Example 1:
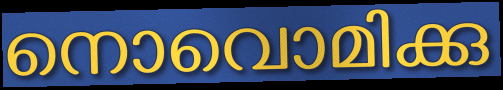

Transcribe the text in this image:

നൊവൊമിക്കു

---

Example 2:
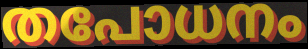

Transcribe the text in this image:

തപോധനം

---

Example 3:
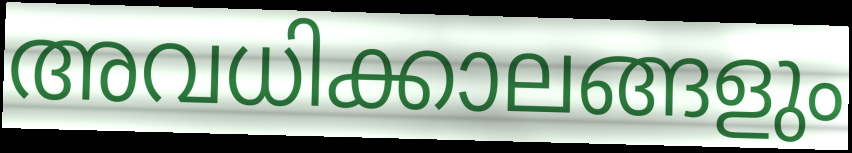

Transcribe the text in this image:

അവധിക്കാലങ്ങളും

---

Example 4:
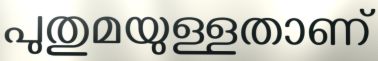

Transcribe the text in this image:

പുതുമയുള്ളതാണ്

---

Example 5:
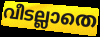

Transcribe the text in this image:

വീടല്ലാതെ